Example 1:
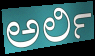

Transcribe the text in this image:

ಅರ್ಲಿ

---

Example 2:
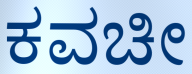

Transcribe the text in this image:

ಕವಚೀ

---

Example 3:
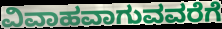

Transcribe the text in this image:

ವಿವಾಹವಾಗುವವರೆಗೆ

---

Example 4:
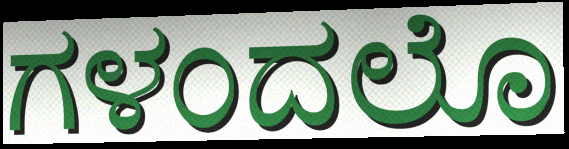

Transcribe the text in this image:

ಗಳಂದಲೊ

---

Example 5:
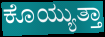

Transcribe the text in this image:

ಕೊಯ್ಯುತ್ತಾ